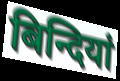
बिन्दियां